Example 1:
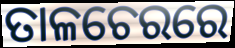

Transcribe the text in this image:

ତାଳଚେରରେ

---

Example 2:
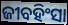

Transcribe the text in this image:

ଜୀବହିଂସା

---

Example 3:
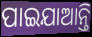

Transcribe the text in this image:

ପାଇଯାଆନ୍ତି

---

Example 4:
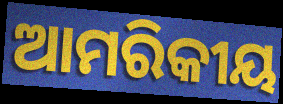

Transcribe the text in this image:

ଆମରିକୀୟ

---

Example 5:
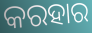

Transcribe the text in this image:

କରହାର